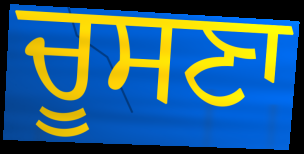
ਚੂਸਣਾ